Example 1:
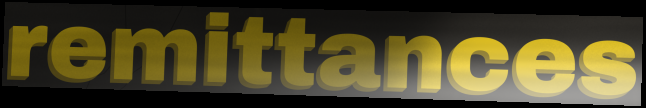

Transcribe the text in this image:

remittances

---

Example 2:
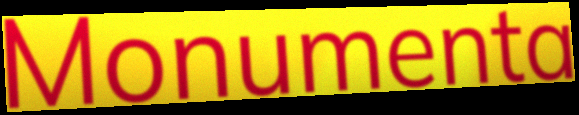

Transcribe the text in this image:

Monumenta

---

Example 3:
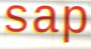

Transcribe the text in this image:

sap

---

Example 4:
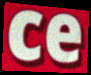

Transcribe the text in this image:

ce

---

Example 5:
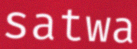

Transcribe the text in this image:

satwa